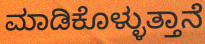
ಮಾಡಿಕೊಳ್ಳುತ್ತಾನೆ